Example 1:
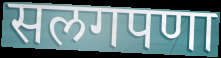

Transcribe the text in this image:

सलगपणा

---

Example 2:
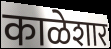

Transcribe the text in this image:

काळेशार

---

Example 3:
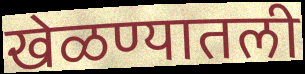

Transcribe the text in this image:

खेळण्यातली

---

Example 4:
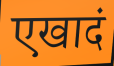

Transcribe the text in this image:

एखादं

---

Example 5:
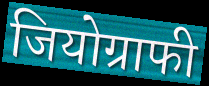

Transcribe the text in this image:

जियोग्राफी